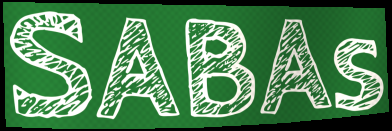
SABAs